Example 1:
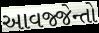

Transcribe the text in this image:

આવજ્જેન્તો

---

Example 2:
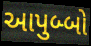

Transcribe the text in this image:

આપુબ્બો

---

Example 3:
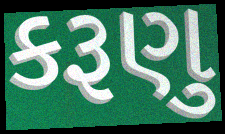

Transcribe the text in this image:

કરૂણુ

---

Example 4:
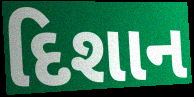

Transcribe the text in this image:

દિશાન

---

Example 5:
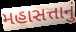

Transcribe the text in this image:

મહાસત્તાનું